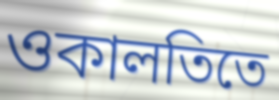
ওকালতিতে